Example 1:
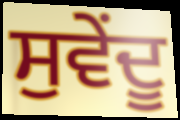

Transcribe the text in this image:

ਸੁਵੇਂਦੂ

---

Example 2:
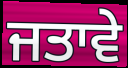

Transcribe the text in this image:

ਜਤਾਵੇ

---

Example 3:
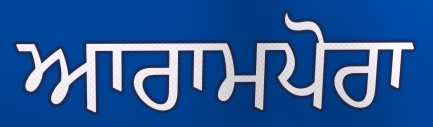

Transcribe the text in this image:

ਆਰਾਮਪੋਰਾ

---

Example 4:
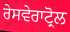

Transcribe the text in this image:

ਰੇਸਵੇਰਾਟ੍ਰੋਲ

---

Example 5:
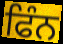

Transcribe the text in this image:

ਫਿੰਨ